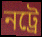
নট্ৰে